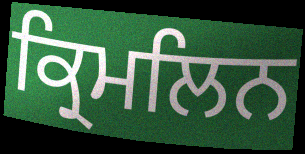
ਕ੍ਰਿਮਲਿਨ